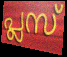
പ്ലസ്